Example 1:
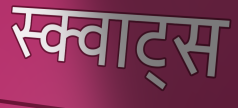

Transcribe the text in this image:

स्क्वाट्स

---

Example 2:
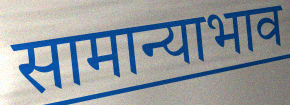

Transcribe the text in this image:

सामान्याभाव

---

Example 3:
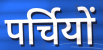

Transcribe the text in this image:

पर्चियों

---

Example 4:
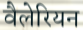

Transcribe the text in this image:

वैलेरियन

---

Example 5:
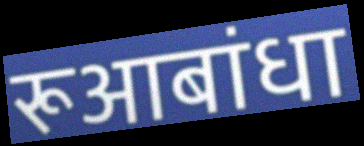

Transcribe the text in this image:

रूआबांधा